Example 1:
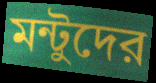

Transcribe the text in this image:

মন্টুদের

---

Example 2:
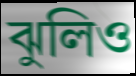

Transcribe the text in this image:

ঝুলিও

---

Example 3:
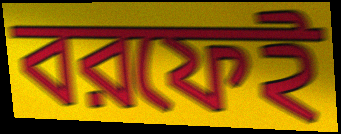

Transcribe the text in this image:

বরফেই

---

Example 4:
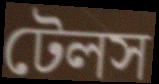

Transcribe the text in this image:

টেলস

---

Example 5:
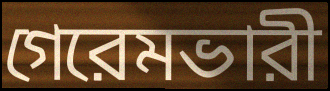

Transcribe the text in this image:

গেরেমভারী